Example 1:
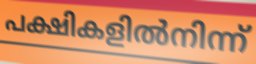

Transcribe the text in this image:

പക്ഷികളിൽനിന്ന്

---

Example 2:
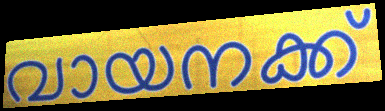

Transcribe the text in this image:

വായനക്ക്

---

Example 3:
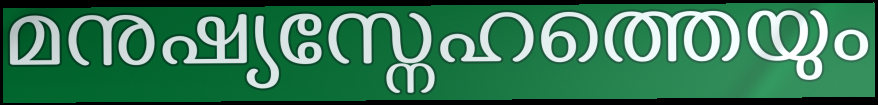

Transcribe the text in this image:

മനുഷ്യസ്നേഹത്തെയും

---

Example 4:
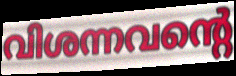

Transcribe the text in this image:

വിശന്നവന്റെ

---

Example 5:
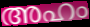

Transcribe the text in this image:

അഹം